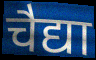
चैद्या